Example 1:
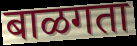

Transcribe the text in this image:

बाळगता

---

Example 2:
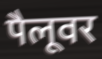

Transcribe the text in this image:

पैलूवर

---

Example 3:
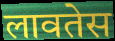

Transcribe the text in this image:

लावतेस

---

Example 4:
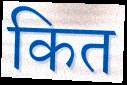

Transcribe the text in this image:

कित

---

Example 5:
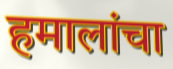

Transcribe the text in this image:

हमालांचा